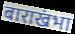
बाराखंभा